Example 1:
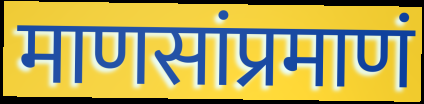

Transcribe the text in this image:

माणसांप्रमाणं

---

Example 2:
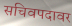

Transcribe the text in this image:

सचिवपदावर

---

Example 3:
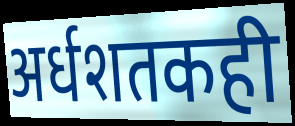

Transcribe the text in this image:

अर्धशतकही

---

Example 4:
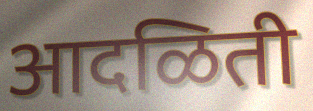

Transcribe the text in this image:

आदळिती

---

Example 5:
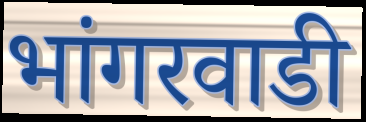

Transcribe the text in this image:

भांगरवाडी